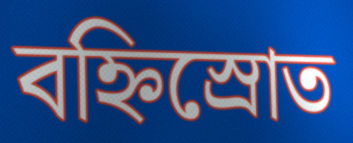
বহ্নিস্রোত